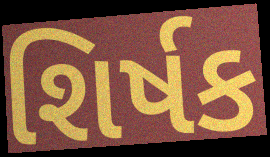
શિર્ષક